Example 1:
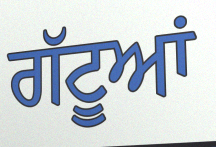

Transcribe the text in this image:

ਗੱਟੂਆਂ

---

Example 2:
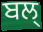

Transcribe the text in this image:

ਬਲ੍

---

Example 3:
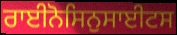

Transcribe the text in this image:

ਰਾਈਨੋਸਿਨੁਸਾਈਟਸ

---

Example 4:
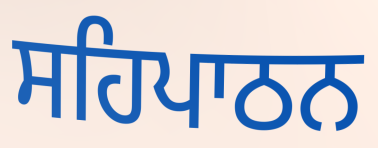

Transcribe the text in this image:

ਸਹਿਪਾਠਨ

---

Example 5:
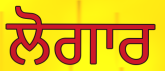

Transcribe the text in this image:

ਲੋਗਾਰ